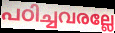
പഠിച്ചവരല്ലേ